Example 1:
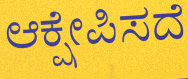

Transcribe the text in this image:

ಆಕ್ಷೇಪಿಸದೆ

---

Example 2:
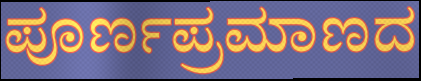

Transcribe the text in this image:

ಪೂರ್ಣಪ್ರಮಾಣದ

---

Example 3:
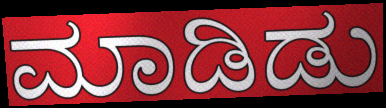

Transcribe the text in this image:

ಮಾಡಿಡು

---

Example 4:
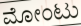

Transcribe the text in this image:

ಮೋಂಟು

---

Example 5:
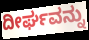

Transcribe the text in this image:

ದೀರ್ಘವನ್ನು